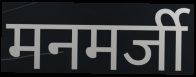
मनमर्जी